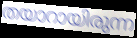
തയാറായിരുന്ന